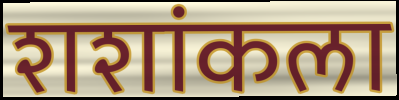
शशांकला